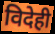
विदेही